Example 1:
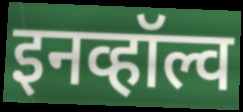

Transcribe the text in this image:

इनव्हॉल्व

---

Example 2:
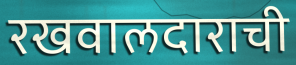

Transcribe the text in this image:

रखवालदाराची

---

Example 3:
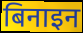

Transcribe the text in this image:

बिनाइन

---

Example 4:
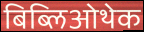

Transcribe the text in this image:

बिब्लिओथेक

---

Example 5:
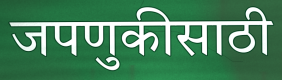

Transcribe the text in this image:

जपणुकीसाठी